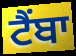
ਟੈਂਬਾ